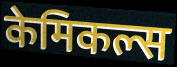
केमिकल्स